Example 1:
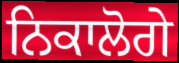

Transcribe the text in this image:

ਨਿਕਾਲੋਗੇ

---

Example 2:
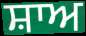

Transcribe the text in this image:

ਸ਼ਾਅ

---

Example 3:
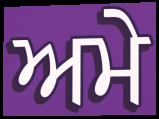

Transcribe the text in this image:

ਅਮੇ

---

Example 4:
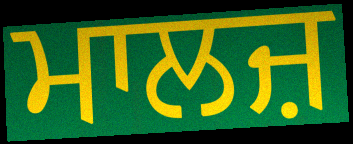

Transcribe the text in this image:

ਮਾਲਜ਼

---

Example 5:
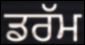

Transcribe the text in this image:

ਡਰੱਮ